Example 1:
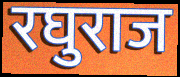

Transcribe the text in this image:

रघुराज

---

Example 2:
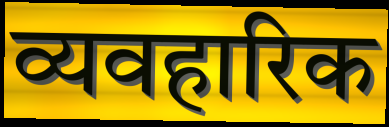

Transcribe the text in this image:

व्यवहारिक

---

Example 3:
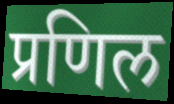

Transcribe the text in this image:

प्रणिल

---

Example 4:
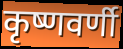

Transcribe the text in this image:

कृष्णवर्णी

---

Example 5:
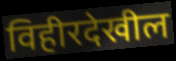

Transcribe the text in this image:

विहीरदेखील